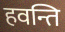
हवन्ति